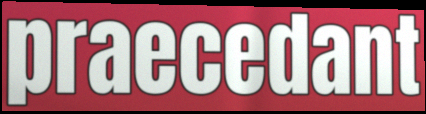
praecedant